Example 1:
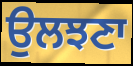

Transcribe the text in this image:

ਉਲਝਣਾ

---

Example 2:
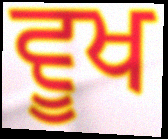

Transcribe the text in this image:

ਵੂਖ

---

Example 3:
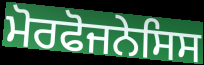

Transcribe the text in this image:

ਮੋਰਫੋਜਨੇਸਿਸ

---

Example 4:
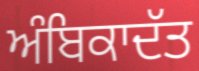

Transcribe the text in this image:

ਅੰਬਿਕਾਦੱਤ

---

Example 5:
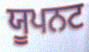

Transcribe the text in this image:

ਯੂਪਨਟ